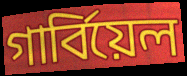
গার্বিয়েল